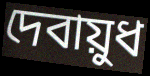
দেবায়ুধ